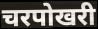
चरपोखरी